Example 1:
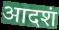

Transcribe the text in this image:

आदशं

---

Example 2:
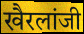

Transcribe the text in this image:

खैरलांजी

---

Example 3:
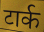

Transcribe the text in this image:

टार्क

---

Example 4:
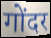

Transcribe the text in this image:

गोंदर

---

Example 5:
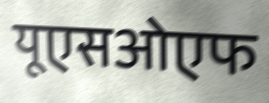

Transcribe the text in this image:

यूएसओएफ